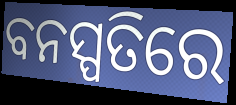
ବନସ୍ପତିରେ